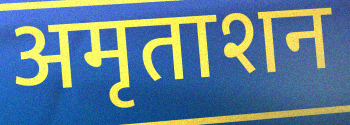
अमृताशन